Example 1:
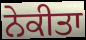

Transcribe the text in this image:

ਨੇਕੀਤਾ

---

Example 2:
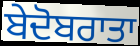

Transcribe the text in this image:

ਬੇਦੋਬਰਾਤਾ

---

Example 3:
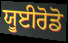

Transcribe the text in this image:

ਯੂਈਰੋਡੋ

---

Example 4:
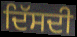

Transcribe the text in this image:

ਦਿੱਸਦੀ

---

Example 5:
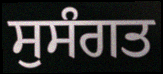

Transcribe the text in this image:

ਸੁਸੰਗਤ